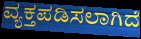
ವ್ಯಕ್ತಪಡಿಸಲಾಗಿದೆ